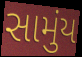
સામુંય